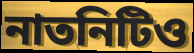
নাতনিটিও